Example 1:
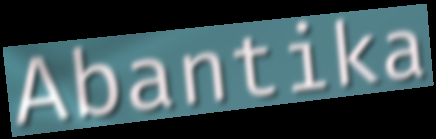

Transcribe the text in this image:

Abantika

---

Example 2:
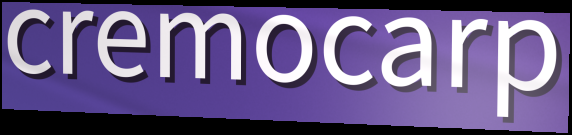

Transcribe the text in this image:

cremocarp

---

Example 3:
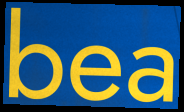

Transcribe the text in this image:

bea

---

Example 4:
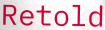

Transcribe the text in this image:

Retold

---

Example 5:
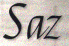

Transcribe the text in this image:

Saz